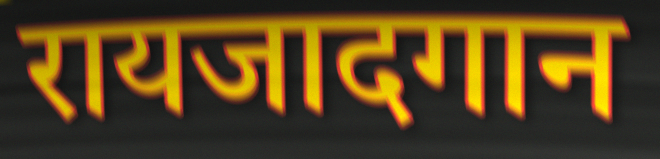
रायजादगान